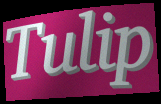
Tulip